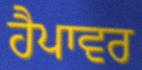
ਹੈਪਾਵਰ